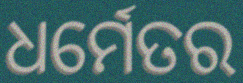
ଧର୍ମେତର